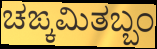
ಚಙ್ಕಮಿತಬ್ಬಂ